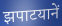
झपाटयानें